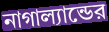
নাগাল্যান্ডের